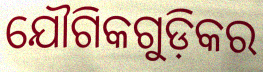
ଯୌଗିକଗୁଡ଼ିକର